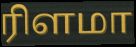
ரிளமா